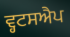
ਵ੍ਹਟਸਐਪ